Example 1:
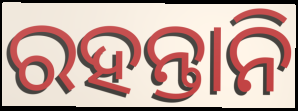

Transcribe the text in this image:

ରହନ୍ତାନି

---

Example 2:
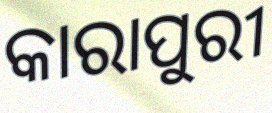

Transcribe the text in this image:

କାରାପୁରୀ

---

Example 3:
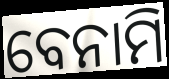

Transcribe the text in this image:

ବେନାମି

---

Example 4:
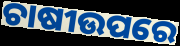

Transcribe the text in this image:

ଚାଷୀଉପରେ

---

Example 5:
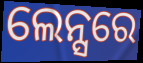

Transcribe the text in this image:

ଲେନ୍ସରେ